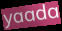
yaada